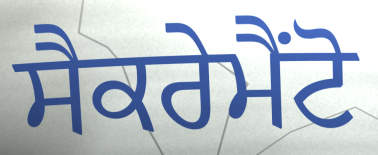
ਸੈਕਰੇਮੈਂਟੋ